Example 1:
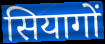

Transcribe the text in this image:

सियागों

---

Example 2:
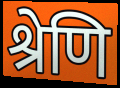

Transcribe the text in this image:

श्रेणि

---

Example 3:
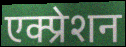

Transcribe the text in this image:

एक्प्रेशन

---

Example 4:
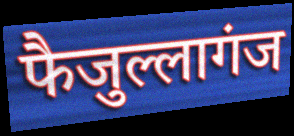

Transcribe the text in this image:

फैजुल्लागंज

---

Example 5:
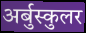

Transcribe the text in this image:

अर्बुस्कुलर